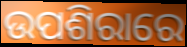
ଉପଶିରାରେ